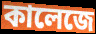
কালেজে